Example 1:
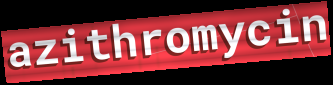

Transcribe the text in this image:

azithromycin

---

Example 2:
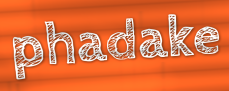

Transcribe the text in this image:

phadake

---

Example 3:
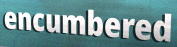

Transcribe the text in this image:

encumbered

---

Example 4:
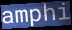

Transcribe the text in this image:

amphi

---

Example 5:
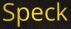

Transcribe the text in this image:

Speck